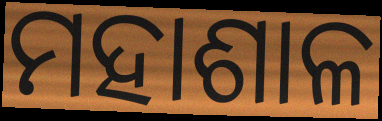
ମହାଶାଳ